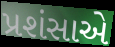
પ્રશંસાએ